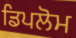
ਡਿਪਲੋਮ